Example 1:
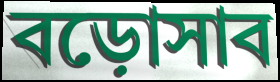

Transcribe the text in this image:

বড়োসাব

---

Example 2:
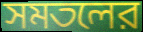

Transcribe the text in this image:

সমতলের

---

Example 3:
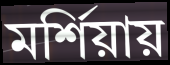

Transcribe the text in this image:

মর্শিয়ায়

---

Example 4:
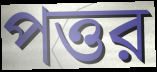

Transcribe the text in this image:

পত্তর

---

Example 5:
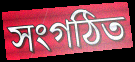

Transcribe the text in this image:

সংগঠিত